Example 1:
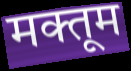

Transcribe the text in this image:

मक्तूम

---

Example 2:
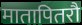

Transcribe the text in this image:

मातापितरौ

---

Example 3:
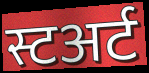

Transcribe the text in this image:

स्टअर्ट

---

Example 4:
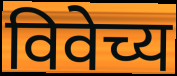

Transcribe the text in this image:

विवेच्य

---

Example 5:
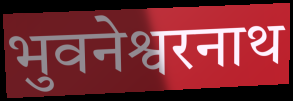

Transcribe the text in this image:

भुवनेश्वरनाथ